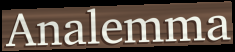
Analemma